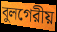
বুলগেরীয়